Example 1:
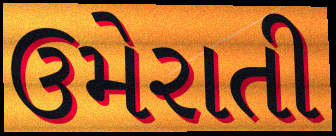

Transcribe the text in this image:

ઉમેરાતી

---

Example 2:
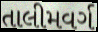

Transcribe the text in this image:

તાલીમવર્ગ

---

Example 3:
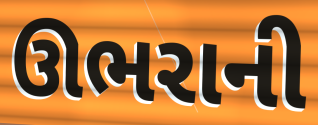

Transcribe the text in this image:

ઊભરાની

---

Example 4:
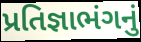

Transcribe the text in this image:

પ્રતિજ્ઞાભંગનું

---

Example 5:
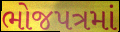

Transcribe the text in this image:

ભોજપત્રમાં